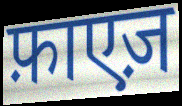
फ़ाएज़